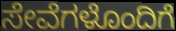
ಸೇವೆಗಳೊಂದಿಗೆ